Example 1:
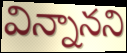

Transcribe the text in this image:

విన్నానని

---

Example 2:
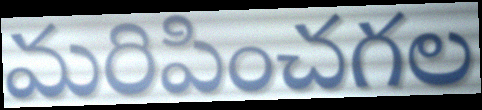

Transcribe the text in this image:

మరిపించగల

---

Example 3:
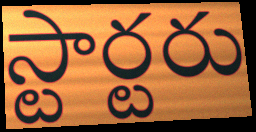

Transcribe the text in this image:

స్టార్టరు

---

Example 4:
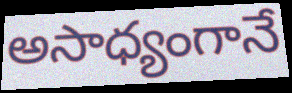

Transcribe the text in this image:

అసాధ్యంగానే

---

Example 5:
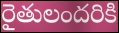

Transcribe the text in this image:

రైతులందరికి